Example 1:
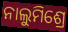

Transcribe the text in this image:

ନାଲୁମିଶ୍ରେ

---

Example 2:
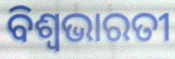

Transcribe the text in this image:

ବିଶ୍ୱଭାରତୀ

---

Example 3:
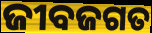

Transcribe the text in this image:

ଜୀବଜଗତ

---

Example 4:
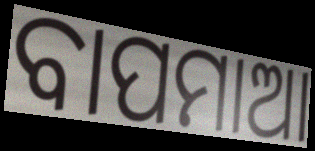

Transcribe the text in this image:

ବାପମାଆ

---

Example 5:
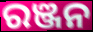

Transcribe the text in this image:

ରଞ୍ଜନ